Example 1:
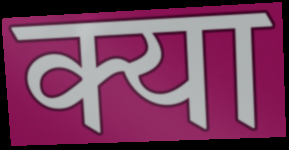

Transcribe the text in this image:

क्‍या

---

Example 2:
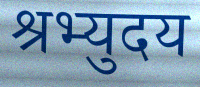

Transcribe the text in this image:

श्रभ्युदय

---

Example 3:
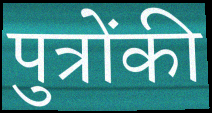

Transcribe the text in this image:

पुत्रोंकी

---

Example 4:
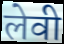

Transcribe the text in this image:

लेवी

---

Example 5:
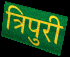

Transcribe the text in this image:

त्रिपुरी